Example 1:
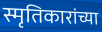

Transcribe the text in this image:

स्मृतिकारांच्या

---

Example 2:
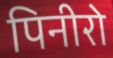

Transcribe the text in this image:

पिनीरो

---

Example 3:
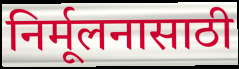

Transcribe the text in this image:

निर्मूलनासाठी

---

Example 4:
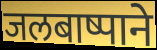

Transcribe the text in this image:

जलबाष्पाने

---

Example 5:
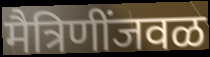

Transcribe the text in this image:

मैत्रिणींजवळ